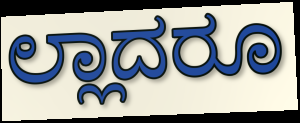
ಲ್ಲಾದರೂ